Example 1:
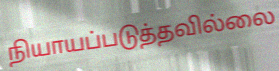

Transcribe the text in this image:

நியாயப்படுத்தவில்லை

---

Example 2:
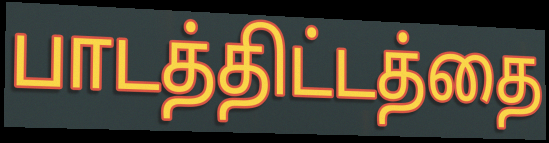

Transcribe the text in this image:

பாடத்திட்டத்தை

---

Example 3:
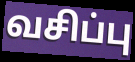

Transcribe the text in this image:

வசிப்பு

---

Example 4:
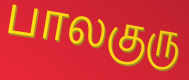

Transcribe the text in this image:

பாலகுரு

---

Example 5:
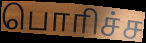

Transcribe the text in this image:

பொரிச்ச